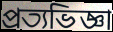
প্রত্যভিজ্ঞা